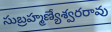
సుబ్రహ్మణ్యేశ్వరరావు